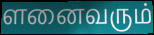
ளனைவரும்